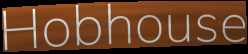
Hobhouse